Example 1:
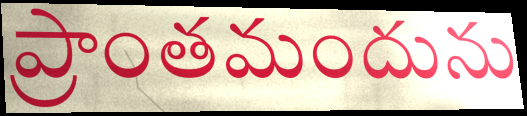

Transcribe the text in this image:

ప్రాంతమందును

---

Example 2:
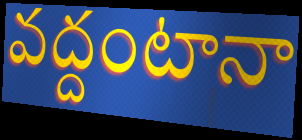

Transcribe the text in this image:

వద్దంటానా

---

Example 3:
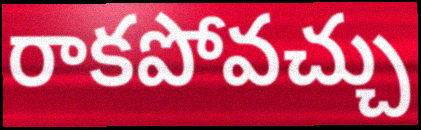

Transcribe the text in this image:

రాకపోవచ్చు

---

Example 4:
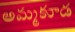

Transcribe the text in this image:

అమ్మకూడ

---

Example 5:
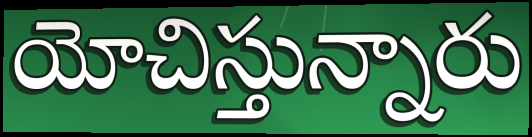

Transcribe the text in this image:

యోచిస్తున్నారు